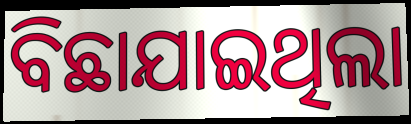
ବିଛାଯାଇଥିଲା